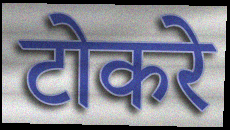
टोकरे